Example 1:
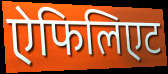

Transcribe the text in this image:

ऐफिलिएट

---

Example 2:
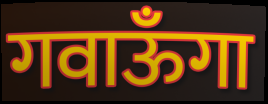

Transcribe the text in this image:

गवाऊँगा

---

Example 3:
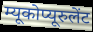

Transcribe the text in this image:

म्यूकोप्यूरुलेंट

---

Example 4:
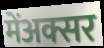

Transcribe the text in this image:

मेंअक्सर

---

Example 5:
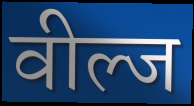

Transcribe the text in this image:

वील्ज